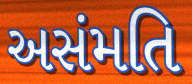
અસંમતિ